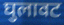
घुलावट